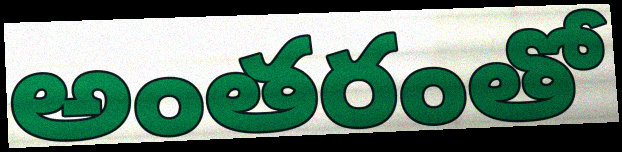
అంతరంతో